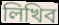
লিখিব